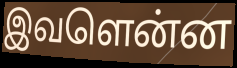
இவளென்ன